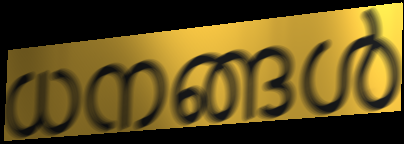
ധനങ്ങൾ